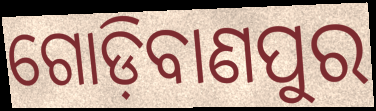
ଗୋଡ଼ିବାଣପୁର